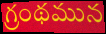
గ్రంథమున